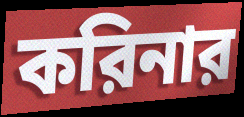
করিনার